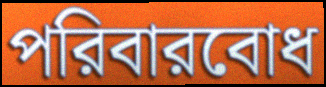
পরিবারবোধ